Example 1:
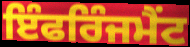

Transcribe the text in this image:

ਇੰਫਰਿੰਜਮੈਂਟ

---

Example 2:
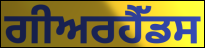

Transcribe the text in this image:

ਗੀਅਰਹੈੱਡਸ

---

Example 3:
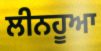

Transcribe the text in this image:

ਲੀਨਹੂਆ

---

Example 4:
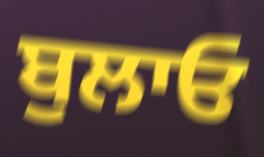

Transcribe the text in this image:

ਬੁਲਾਓ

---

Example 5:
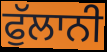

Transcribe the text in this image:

ਫੁੱਲਾਨੀ